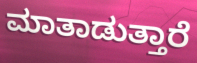
ಮಾತಾಡುತ್ತಾರೆ